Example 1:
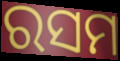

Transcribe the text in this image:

ରସମ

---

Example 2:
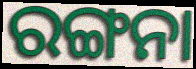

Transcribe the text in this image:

ରଙ୍ଗନା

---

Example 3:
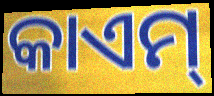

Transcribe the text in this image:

କାଏମ୍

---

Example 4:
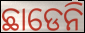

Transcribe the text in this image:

ଛାଡେନି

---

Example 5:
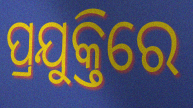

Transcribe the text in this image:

ପ୍ରଯୁକ୍ତିରେ